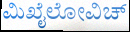
ಮಿಖೈಲೋವಿಚ್